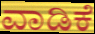
ವಾಡಿಕೆ